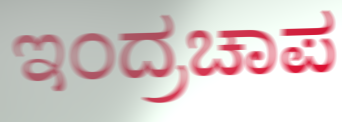
ಇಂದ್ರಚಾಪ